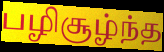
பழிசூழ்ந்த